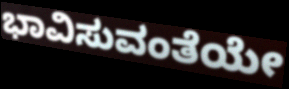
ಭಾವಿಸುವಂತೆಯೇ